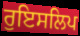
ਰੁਇਸਲਿਪ